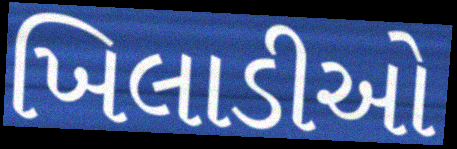
ખિલાડીઓ